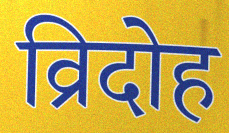
व्रिदोह